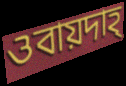
ওবায়দাহ্